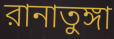
রানাতুঙ্গা